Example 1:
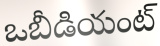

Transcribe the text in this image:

ఒబీడియంట్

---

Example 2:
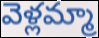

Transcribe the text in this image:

వెళ్లమ్మా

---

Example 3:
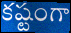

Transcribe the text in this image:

కష్టంగా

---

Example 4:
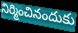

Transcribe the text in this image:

నిర్మించినందుకు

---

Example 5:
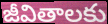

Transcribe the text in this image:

జీవితాలకు